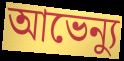
আভেন্যু